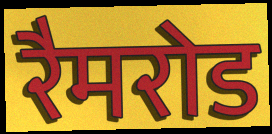
रैमरोड